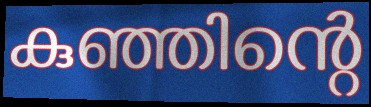
കുഞ്ഞിന്റെ